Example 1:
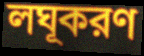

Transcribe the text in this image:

লঘূকরণ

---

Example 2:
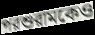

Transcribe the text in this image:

পরশুরামকেও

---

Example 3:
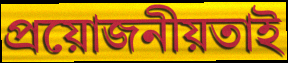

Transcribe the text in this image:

প্রয়োজনীয়তাই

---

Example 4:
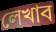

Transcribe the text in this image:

লেখাব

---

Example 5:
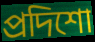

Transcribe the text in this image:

প্রদিশো